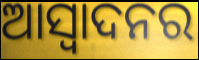
ଆସ୍ବାଦନର